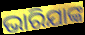
ଭାରିଯାଙ୍କ